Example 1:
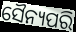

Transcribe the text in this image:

ସୈନ୍ୟପରି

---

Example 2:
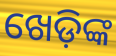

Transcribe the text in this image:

ଖେଡ଼ିଙ୍କ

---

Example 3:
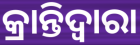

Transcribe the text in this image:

କ୍ରାନ୍ତିଦ୍ୱାରା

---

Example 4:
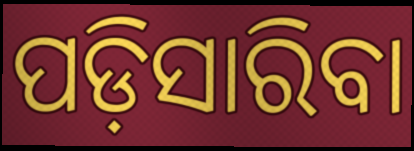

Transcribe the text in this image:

ପଡ଼ିସାରିବା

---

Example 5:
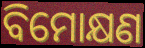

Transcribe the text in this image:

ବିମୋକ୍ଷଣ